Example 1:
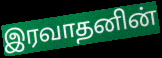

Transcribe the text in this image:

இரவாதனின்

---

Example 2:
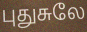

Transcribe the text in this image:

புதுசுலே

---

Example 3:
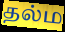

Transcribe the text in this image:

தல்ம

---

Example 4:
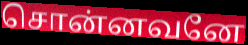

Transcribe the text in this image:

சொன்னவனே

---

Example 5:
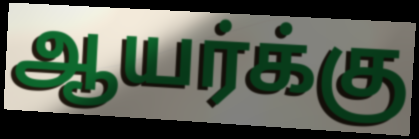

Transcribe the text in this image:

ஆயர்க்கு